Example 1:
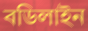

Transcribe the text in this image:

বডিলাইন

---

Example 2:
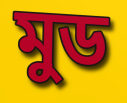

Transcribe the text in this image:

মুড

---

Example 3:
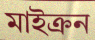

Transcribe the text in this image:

মাইক্রন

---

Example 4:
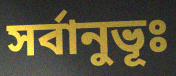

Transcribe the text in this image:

সর্বানুভূঃ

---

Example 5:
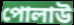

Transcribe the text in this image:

পোলাউ